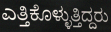
ಎತ್ತಿಕೊಳ್ಳುತ್ತಿದ್ದರು